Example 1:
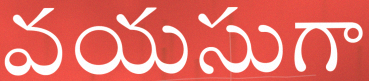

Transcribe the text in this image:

వయసుగా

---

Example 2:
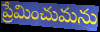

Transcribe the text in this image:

ప్రేమించుమను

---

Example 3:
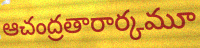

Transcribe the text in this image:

ఆచంద్రతారార్కమూ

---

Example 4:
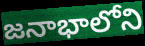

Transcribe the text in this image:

జనాభాలోని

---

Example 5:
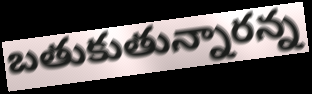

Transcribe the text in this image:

బతుకుతున్నారన్న